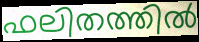
ഫലിതത്തിൽ